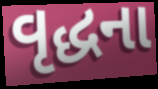
વૃદ્ધના